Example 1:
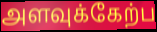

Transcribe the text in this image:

அளவுக்கேற்ப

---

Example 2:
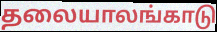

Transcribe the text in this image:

தலையாலங்காடு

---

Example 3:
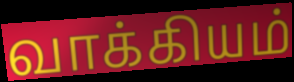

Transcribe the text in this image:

வாக்கியம்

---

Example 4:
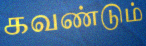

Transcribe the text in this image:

கவண்டும்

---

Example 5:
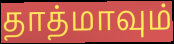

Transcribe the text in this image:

தாத்மாவும்